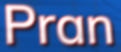
Pran